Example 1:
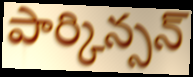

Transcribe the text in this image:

పార్కిన్సన్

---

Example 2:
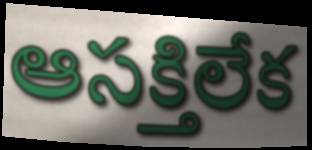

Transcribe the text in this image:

ఆసక్తిలేక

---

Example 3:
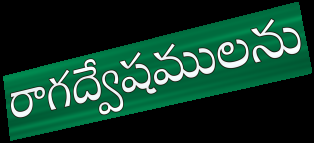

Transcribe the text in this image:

రాగద్వేషములను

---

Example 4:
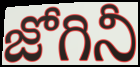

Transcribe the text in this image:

జోగినీ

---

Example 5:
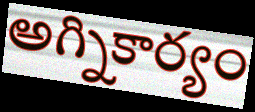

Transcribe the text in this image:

అగ్నికార్యం